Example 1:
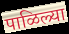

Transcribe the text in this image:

पाळिल्या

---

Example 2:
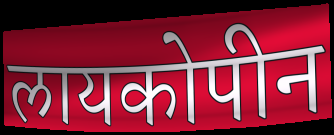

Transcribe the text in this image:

लायकोपीन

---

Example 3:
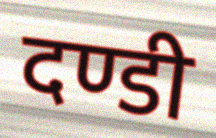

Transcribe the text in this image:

दण्डी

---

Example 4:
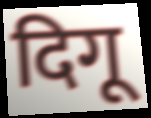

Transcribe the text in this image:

दिगू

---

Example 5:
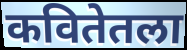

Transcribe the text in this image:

कवितेतला